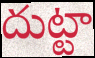
దుట్టా